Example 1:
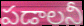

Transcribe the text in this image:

పడాలనీ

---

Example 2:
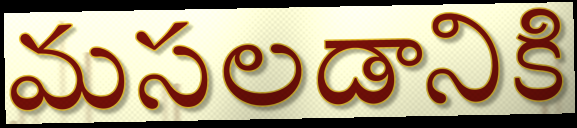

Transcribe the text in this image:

మసలడానికి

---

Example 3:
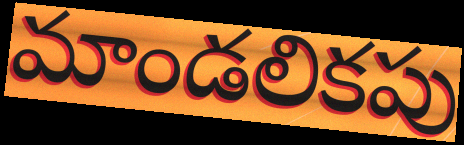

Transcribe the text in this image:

మాండలికపు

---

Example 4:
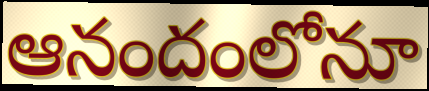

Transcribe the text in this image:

ఆనందంలోనూ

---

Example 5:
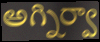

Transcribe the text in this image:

అగ్నిర్వా